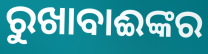
ରୁଖାବାଈଙ୍କର